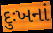
દુઃખનાં